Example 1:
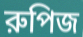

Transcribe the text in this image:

রুপিজ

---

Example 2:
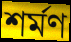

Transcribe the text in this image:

শর্মণ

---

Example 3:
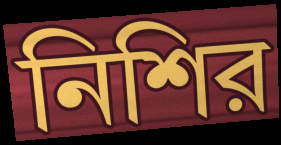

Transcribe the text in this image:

নিশির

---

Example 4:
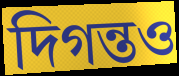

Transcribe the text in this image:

দিগন্তও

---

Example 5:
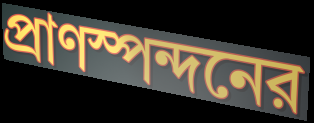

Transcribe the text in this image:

প্রাণস্পন্দনের